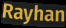
Rayhan